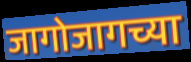
जागोजागच्या